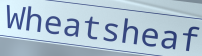
Wheatsheaf